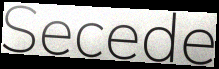
Secede